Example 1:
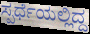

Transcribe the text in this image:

ಸ್ಪರ್ಧೆಯಲ್ಲಿದ್ದ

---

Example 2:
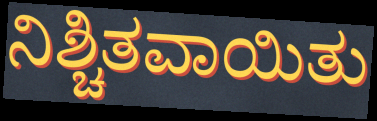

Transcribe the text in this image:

ನಿಶ್ಚಿತವಾಯಿತು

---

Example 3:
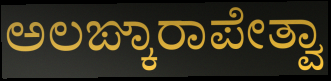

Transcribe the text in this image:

ಅಲಙ್ಕಾರಾಪೇತ್ವಾ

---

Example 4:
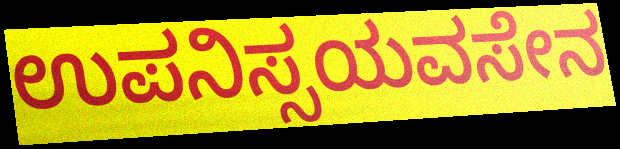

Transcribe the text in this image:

ಉಪನಿಸ್ಸಯವಸೇನ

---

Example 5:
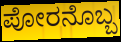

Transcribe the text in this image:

ಪೋರನೊಬ್ಬ